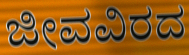
ಜೀವವಿರದ